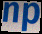
np